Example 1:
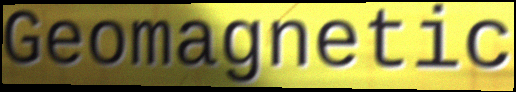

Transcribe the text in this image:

Geomagnetic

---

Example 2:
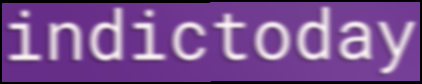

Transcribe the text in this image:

indictoday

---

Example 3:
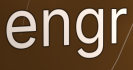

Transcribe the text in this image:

engr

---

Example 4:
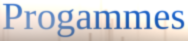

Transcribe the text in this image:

Progammes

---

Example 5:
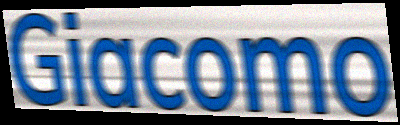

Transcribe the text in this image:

Giacomo